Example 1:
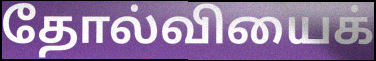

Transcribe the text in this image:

தோல்வியைக்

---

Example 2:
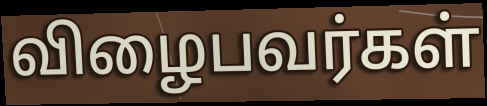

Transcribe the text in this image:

விழைபவர்கள்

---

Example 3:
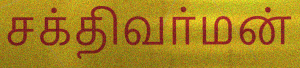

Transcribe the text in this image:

சக்திவர்மன்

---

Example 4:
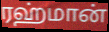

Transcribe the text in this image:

ரஹ்மான்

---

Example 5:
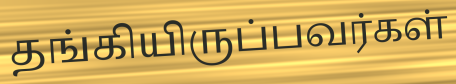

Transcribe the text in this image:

தங்கியிருப்பவர்கள்